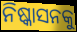
ନିଷ୍କାସନକୁ